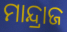
ମାନ୍ଦ୍ରାଜ